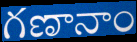
గణానాం